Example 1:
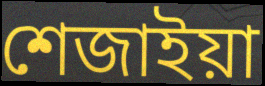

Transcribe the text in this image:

শেজাইয়া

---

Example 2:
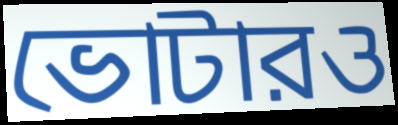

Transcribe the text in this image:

ভোটারও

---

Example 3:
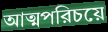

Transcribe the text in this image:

আত্মপরিচয়ে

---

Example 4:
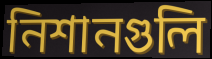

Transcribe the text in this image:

নিশানগুলি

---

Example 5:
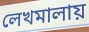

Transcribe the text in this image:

লেখমালায়